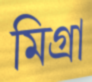
মিগ্রা